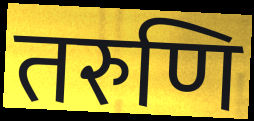
तरुणि